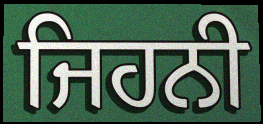
ਜਿਹਨੀ